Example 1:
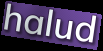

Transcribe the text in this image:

halud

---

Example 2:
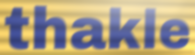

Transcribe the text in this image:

thakle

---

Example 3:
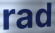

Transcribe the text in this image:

rad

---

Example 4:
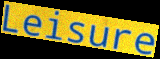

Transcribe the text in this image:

Leisure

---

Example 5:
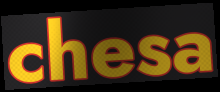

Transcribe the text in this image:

chesa